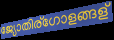
ജ്യോതിര്ഗോളങ്ങള്